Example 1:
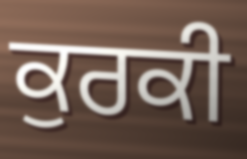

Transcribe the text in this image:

ਕੁਰਕੀ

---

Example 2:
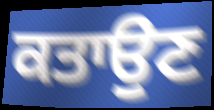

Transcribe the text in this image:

ਕਤਾਉਣ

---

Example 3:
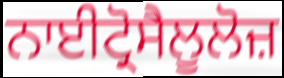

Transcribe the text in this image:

ਨਾਈਟ੍ਰੋਸੈਲੂਲੋਜ਼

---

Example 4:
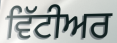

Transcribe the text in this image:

ਵਿੱਟੀਅਰ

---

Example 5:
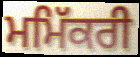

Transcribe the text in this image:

ਮਮਿੱਕਰੀ